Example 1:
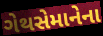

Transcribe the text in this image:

ગેથસેમાનેના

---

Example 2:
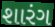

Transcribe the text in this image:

શારંગ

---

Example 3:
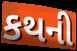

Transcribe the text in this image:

કથની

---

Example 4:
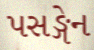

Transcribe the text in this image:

પસઙ્ગેન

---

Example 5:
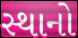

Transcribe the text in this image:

સ્થાનો